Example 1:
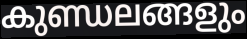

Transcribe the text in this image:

കുണ്ഡലങ്ങളും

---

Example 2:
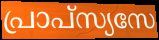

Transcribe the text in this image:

പ്രാപ്സ്യസേ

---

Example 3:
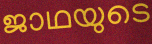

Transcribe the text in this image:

ജാഥയുടെ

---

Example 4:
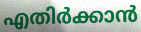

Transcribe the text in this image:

എതിർക്കാൻ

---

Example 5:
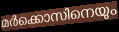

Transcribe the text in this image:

മർക്കൊസിനെയും